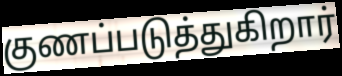
குணப்படுத்துகிறார்